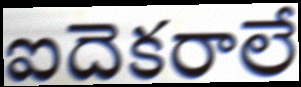
ఐదెకరాలే